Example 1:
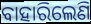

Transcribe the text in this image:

ବାହାରିଲେଣି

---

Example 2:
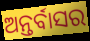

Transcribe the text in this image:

ଅନ୍ତର୍ବାସର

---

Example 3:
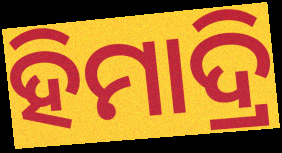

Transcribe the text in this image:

ହିମାଦ୍ରି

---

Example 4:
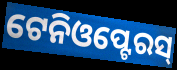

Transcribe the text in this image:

ଟେନିଓପ୍ଟେରସ୍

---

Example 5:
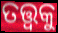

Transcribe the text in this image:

ତତ୍ତ୍ଵକୁ